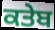
ਕਤੇਬ